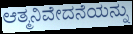
ಆತ್ಮನಿವೇದನೆಯನ್ನು